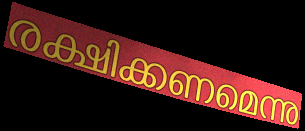
രക്ഷിക്കണമെന്നു